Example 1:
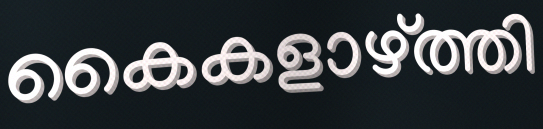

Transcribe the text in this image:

കൈകളാഴ്ത്തി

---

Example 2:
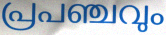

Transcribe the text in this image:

പ്രപഞ്ചവും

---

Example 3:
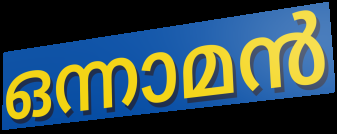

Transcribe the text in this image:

ഒന്നാമൻ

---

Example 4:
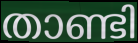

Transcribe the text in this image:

താണ്ടി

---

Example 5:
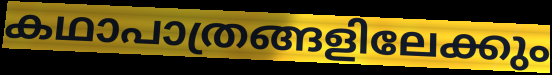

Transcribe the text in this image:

കഥാപാത്രങ്ങളിലേക്കും